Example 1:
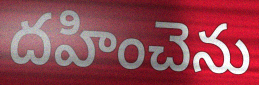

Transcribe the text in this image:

దహించెను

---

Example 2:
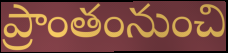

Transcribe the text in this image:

ప్రాంతంనుంచి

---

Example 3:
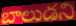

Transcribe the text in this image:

బాలుడని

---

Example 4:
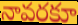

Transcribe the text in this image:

నావరకూ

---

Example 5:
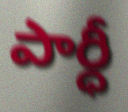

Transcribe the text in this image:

పార్ధీ